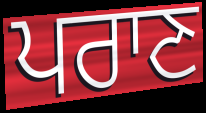
ਪਰਾਣ